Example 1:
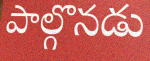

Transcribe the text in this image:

పాల్గొనడు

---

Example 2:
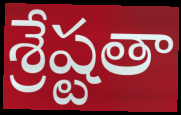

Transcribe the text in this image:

శ్రేష్టతా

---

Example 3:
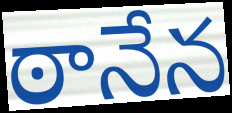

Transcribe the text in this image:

ఠానేన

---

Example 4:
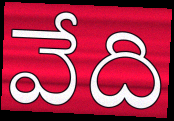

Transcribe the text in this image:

వేది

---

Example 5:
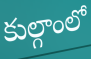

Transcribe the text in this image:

కుల్గాంలో